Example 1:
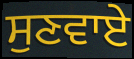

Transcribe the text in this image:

ਸੁਣਵਾਏ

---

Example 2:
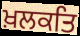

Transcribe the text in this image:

ਖ਼ਲਕਤਿ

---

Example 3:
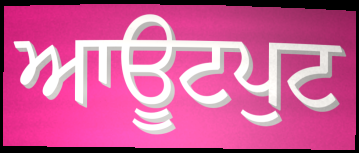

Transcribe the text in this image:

ਆਊਟਪੁਟ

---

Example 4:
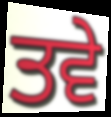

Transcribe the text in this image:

ਤਵੇ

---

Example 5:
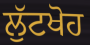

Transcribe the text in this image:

ਲੁੱਟਖੋਹ